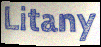
Litany